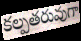
కల్పతరువుగా